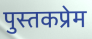
पुस्तकप्रेम